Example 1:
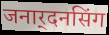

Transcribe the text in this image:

जनार्दनसिंग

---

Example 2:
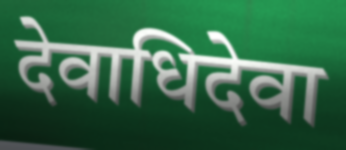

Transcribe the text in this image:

देवाधिदेवा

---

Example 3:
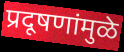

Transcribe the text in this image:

प्रदूषणांमुळे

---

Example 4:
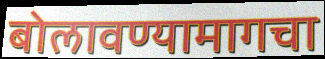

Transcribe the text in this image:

बोलावण्यामागचा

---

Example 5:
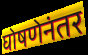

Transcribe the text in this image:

घोषणेनंतर